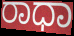
ರಾಧಾ